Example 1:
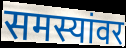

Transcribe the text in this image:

समस्यांवर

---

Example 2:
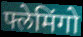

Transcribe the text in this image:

फ्लेमिंगो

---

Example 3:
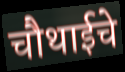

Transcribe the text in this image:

चौथाईचे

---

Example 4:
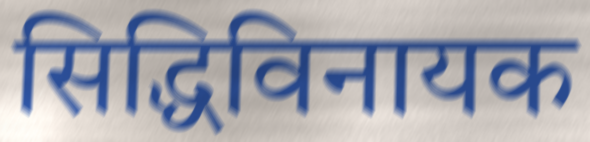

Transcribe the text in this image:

सिद्धिविनायक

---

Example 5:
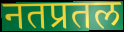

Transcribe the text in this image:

नतप्रतल